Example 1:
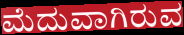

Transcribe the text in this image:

ಮೆದುವಾಗಿರುವ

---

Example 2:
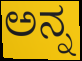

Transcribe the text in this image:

ಅನ್ನ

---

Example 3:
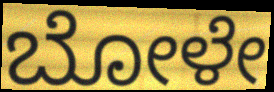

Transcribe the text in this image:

ಬೋಳೇ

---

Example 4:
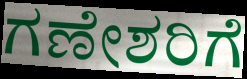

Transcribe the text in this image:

ಗಣೇಶರಿಗೆ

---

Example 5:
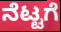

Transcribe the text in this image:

ನೆಟ್ಟಗೆ